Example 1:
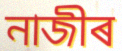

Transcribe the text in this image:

নাজীৰ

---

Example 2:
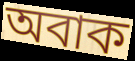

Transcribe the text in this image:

অবাক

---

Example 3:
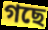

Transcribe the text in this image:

গছে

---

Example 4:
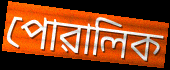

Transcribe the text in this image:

পোৱালিক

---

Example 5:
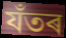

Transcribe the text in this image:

যঁতৰ